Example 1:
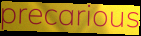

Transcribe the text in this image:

precarious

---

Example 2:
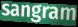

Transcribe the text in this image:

sangram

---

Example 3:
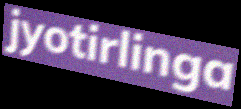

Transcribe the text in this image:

jyotirlinga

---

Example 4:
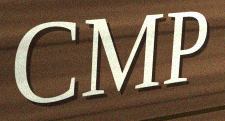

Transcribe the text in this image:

CMP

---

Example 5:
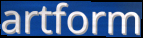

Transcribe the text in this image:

artform